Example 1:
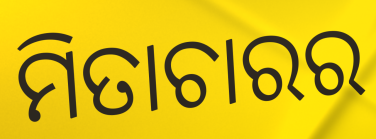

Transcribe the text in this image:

ମିତାଚାରର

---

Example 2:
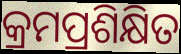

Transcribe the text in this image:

କ୍ରମପ୍ରଶିକ୍ଷିତ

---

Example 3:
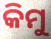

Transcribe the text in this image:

କିମୁ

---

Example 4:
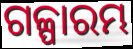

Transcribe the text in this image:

ଗଳ୍ପାରମ୍ଭ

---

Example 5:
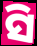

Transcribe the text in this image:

ସି